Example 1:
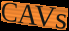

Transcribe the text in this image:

CAVs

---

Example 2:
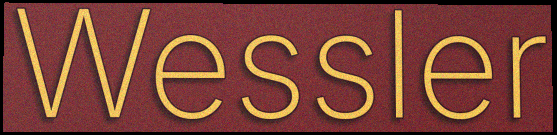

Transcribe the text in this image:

Wessler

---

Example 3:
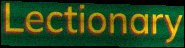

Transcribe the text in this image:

Lectionary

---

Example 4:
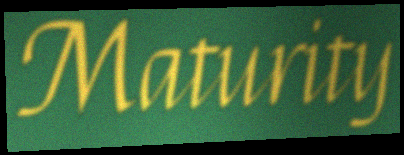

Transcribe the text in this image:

Maturity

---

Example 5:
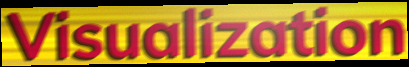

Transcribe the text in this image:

Visualization